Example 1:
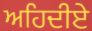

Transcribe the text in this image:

ਅਹਿਦੀਏ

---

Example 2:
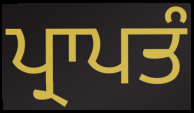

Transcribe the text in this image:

ਪ੍ਰਾਪਤੰ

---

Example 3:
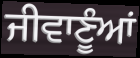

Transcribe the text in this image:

ਜੀਵਾਣੂੰਆਂ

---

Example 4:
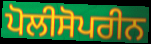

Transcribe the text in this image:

ਪੋਲੀਸੋਪਰੀਨ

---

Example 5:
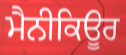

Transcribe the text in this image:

ਮੈਨੀਕਿਊਰ